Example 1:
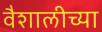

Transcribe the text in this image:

वैशालीच्या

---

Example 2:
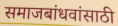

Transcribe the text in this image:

समाजबांधवांसाठी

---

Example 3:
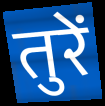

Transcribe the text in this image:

तुरें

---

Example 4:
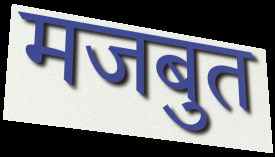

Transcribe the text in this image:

मजबुत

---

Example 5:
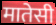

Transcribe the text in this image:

मातेसी